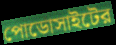
পোডোসাইটের